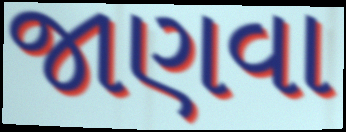
જાણવા